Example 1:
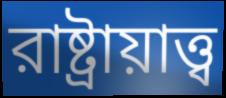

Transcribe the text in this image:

রাষ্ট্রায়াত্ত্ব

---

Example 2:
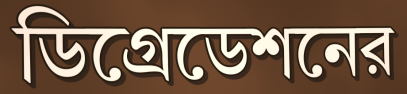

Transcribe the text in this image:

ডিগ্রেডেশনের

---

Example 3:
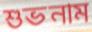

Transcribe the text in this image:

শুভনাম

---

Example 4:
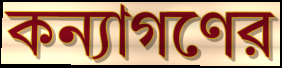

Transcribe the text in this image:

কন্যাগণের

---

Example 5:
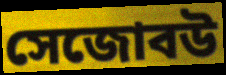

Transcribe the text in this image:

সেজোবউ